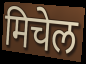
मिचेल